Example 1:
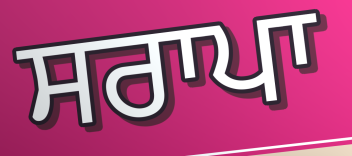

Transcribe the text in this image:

ਸਰਾਪਾ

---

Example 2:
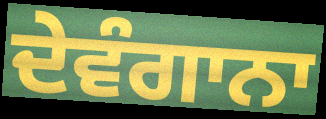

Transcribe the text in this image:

ਦੇਵੰਗਾਨਾ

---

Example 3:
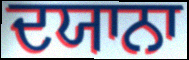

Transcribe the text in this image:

ਦਯਾਨਾ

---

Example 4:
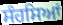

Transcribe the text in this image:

ਸੰਹਸਿਆਂ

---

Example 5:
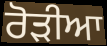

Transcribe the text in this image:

ਰੋੜੀਆ